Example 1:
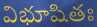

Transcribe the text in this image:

విభూషితః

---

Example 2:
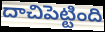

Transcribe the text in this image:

దాచిపెట్టింది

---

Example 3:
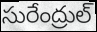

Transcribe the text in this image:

సురేంద్రుల్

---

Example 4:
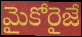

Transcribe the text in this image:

మైకోరైజే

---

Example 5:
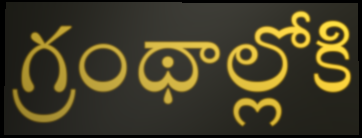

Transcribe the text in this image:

గ్రంథాల్లోకి